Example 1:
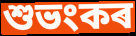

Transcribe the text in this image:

শুভংকৰ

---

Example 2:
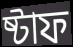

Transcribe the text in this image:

ষ্টাফ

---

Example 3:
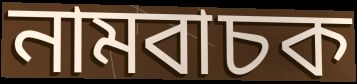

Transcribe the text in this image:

নামবাচক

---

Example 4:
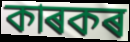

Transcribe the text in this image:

কাৰকৰ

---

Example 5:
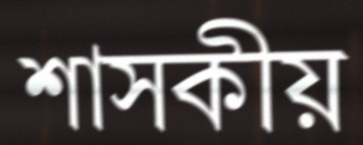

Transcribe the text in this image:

শাসকীয়